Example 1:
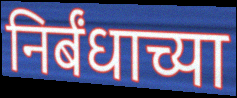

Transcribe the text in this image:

निर्बंधाच्या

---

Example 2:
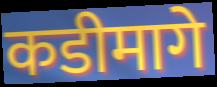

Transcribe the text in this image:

कडीमागे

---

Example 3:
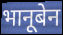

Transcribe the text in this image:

भानूबेन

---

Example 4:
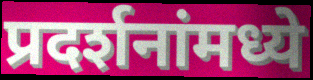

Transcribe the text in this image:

प्रदर्शनांमध्ये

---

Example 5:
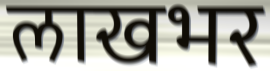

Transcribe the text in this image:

लाखभर